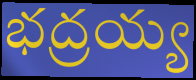
భద్రయ్య